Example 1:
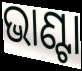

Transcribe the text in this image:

ଭାଣ୍ଟା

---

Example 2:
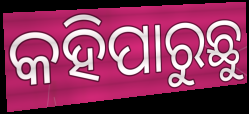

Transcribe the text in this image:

କହିପାରୁଛୁ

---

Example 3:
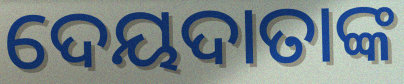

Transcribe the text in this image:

ଦେୟଦାତାଙ୍କ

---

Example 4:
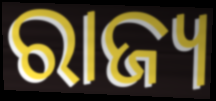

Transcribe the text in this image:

ରାଜ୍ଯ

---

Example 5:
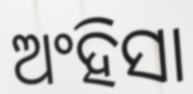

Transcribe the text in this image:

ଅଂହିସା